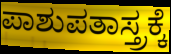
ಪಾಶುಪತಾಸ್ತ್ರಕ್ಕೆ